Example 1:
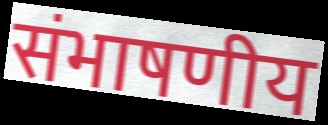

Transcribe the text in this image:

संभाषणीय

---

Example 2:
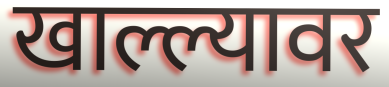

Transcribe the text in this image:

खाल्ल्यावर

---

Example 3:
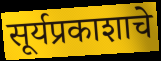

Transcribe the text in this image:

सूर्यप्रकाशाचे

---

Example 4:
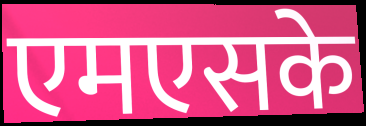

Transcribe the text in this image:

एमएसके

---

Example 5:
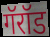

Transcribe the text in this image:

गॅरॉड